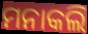
ମନାକଲି